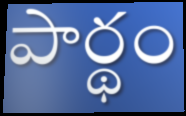
పార్థం